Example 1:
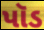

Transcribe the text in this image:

પૉડ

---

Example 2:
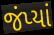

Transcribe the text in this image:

જંપ્યાં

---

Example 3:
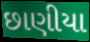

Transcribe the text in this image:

છાણીયા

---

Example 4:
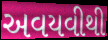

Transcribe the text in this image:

અવયવીથી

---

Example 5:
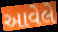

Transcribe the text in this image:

આવેલે